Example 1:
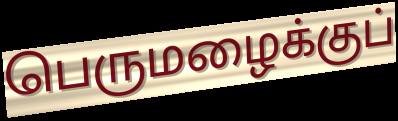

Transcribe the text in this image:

பெருமழைக்குப்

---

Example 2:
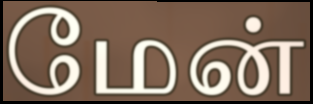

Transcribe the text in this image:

மேன்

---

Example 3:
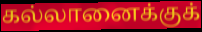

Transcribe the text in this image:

கல்லானைக்குக்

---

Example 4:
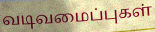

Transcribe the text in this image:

வடிவமைப்புகள்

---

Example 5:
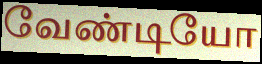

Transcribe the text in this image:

வேண்டியோ